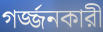
গর্জ্জনকারী